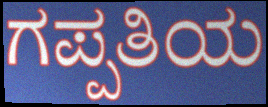
ಗಪ್ಪತಿಯ